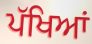
ਪੱਖਿਆਂ